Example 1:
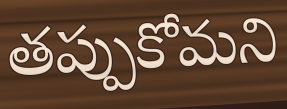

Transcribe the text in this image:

తప్పుకోమని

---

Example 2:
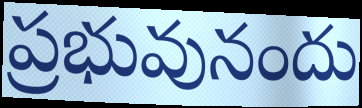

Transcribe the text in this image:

ప్రభువునందు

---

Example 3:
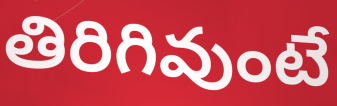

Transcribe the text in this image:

తిరిగివుంటే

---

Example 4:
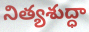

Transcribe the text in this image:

నిత్యశుద్ధా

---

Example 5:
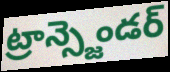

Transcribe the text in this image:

ట్రాన్స్జెండర్